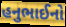
હનુભાઈનો